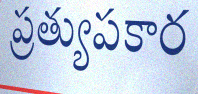
ప్రత్యుపకార